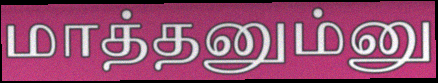
மாத்தனும்னு